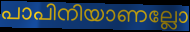
പാപിനിയാണല്ലോ